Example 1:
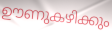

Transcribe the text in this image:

ഊണുകഴിക്കും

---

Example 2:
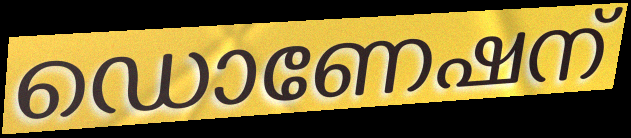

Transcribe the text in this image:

ഡൊണേഷന്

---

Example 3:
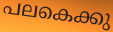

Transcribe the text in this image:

പലകെക്കു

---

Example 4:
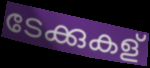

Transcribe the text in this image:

ടേക്കുകള്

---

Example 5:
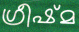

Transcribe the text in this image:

ഗ്രീഷ്മ